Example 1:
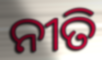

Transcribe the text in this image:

ନୀତି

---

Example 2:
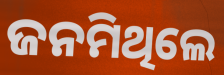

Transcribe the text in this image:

ଜନମିଥିଲେ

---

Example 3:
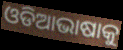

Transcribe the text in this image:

ଓଡିଆଭାଷାକୁ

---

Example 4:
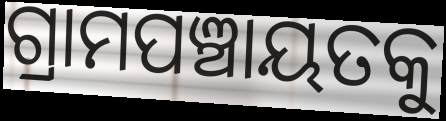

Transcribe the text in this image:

ଗ୍ରାମପଞ୍ଚାୟତକୁ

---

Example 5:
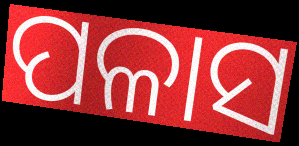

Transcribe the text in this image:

ପଳାସ